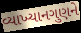
વ્યાખ્યાનગુણને